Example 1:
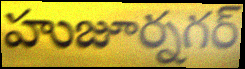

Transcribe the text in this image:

హుజూర్నగర్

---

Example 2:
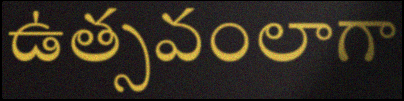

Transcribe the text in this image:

ఉత్సవంలాగా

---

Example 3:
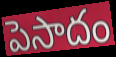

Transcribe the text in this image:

పెసాదం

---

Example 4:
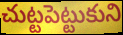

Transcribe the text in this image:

చుట్టపెట్టుకుని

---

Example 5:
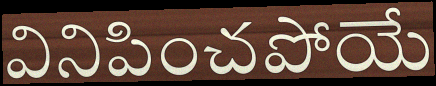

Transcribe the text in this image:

వినిపించపోయే